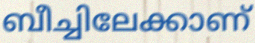
ബീച്ചിലേക്കാണ്